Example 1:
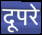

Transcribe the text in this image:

दूपरे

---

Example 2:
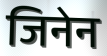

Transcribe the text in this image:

जिनेन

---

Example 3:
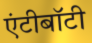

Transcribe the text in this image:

एंटीबॉटी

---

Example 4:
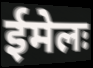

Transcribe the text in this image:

ईमेलः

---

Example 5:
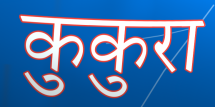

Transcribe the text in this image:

कुकुरा